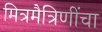
मित्रमैत्रिणींचा